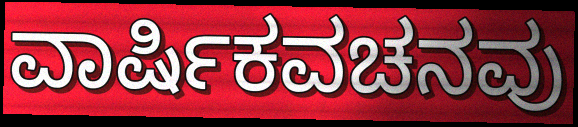
ವಾರ್ಷಿಕವಚನವು